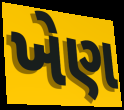
ખેણ